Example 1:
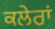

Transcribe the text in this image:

ਕਲੇਰਾਂ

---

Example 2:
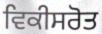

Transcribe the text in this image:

ਵਿਕੀਸਰੋਤ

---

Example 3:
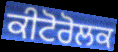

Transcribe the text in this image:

ਕੀਟੋਰੋਲਕ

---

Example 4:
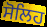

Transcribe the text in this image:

ਸੋਲਿਹ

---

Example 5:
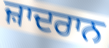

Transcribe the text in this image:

ਜ਼ਾਦਰਾਨ